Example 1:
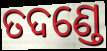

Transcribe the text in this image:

ତଦଣ୍ଡେ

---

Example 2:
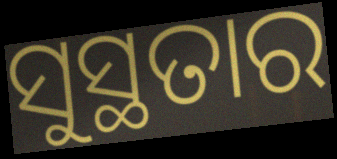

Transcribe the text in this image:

ସୁସ୍ଥତାର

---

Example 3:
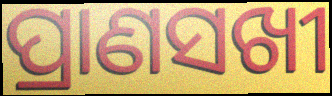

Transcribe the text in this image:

ପ୍ରାଣସଖୀ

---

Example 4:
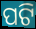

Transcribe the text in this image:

ପଟି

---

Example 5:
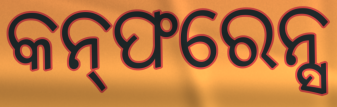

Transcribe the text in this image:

କନ୍‌ଫରେନ୍ସ